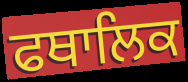
ਫਥਾਲਿਕ